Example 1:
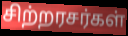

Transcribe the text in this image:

சிற்றரசர்கள்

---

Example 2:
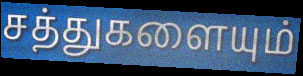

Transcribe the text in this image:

சத்துகளையும்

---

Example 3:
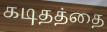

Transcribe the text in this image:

கடிதத்தை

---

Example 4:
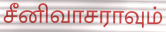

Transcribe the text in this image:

சீனிவாசராவும்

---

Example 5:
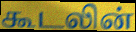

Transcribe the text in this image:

கூடலின்